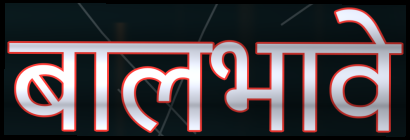
बालभावे